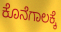
ಕೊನೆಗಾಲಕ್ಕೆ